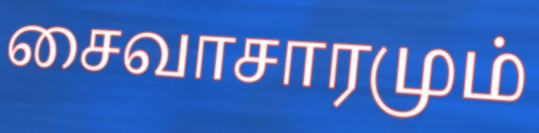
சைவாசாரமும்